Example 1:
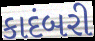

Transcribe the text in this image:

કાદંબરી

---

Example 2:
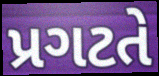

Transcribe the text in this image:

પ્રગટતે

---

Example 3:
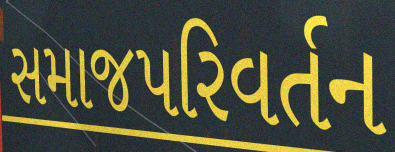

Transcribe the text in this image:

સમાજપરિવર્તન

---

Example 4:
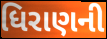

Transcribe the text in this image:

ધિરાણની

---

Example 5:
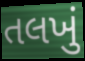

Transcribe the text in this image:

તલખું